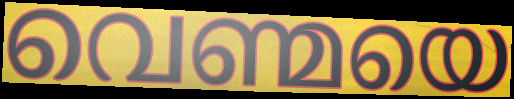
വെണ്മയെ